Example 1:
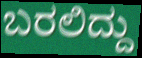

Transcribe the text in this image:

ಬರಲಿದ್ದು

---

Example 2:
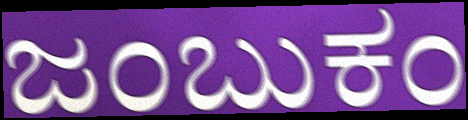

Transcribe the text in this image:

ಜಂಬುಕಂ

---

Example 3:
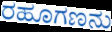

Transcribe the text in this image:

ರಹೂಗಣನು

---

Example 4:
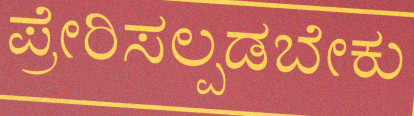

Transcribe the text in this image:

ಪ್ರೇರಿಸಲ್ಪಡಬೇಕು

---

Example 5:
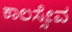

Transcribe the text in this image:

ಕಾಲಸ್ಸೇವ